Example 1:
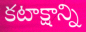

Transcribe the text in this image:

కటాక్షాన్ని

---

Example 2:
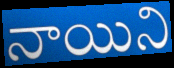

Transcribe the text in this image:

నాయిని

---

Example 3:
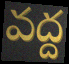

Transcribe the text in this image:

వద్ద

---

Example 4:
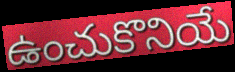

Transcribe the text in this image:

ఉంచుకొనియే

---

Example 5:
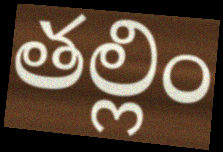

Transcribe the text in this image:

తల్లిం